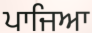
ਪਾਜਿਆ